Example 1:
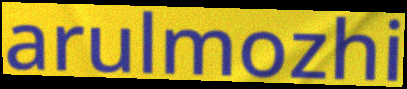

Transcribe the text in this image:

arulmozhi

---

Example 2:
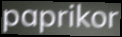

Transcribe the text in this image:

paprikor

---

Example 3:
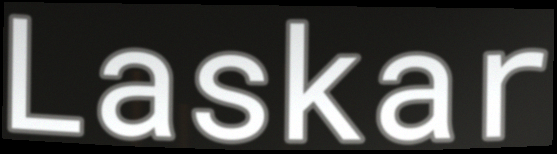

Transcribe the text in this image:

Laskar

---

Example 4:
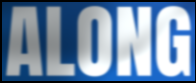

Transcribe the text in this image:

ALONG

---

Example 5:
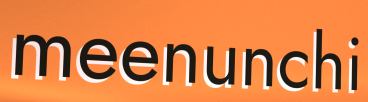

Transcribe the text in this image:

meenunchi